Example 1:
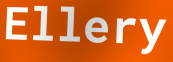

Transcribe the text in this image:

Ellery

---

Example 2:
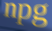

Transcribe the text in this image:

npg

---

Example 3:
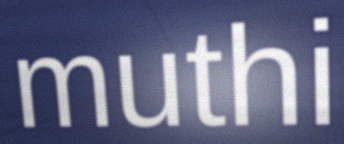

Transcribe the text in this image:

muthi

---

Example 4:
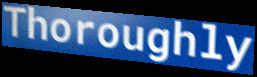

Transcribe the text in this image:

Thoroughly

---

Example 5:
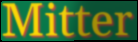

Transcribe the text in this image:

Mitter